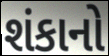
શંકાનો